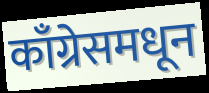
काँग्रेसमधून